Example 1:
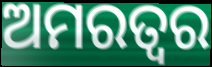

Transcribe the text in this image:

ଅମରତ୍ୱର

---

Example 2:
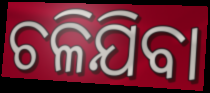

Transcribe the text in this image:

ଚଳିଯିବା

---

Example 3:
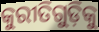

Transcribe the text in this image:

କୁରୀତିଗୁଡ଼ିକୁ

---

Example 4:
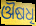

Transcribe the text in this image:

ଔଷଧି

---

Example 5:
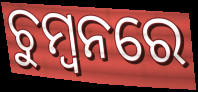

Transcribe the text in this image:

ଚୁମ୍ୱନରେ